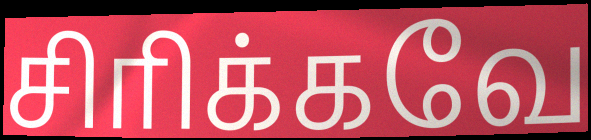
சிரிக்கவே